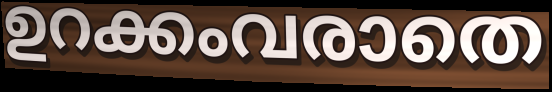
ഉറക്കംവരാതെ